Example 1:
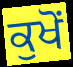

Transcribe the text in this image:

ਕੁਖੋਂ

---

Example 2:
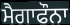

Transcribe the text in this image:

ਮੈਗਾਫੌਨਾ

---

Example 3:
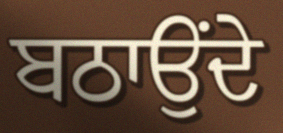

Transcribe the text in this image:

ਬਠਾਉਂਦੇ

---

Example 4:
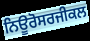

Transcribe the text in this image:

ਨਿਊਰੋਸਰਜੀਕਲ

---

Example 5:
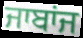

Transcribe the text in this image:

ਜਾਬਾਂਜ